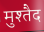
मुश्तैद